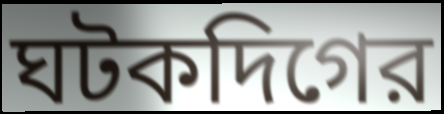
ঘটকদিগের